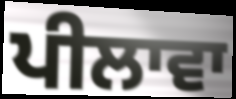
ਪੀਲਾਵਾ